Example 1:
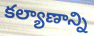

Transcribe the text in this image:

కల్యాణాన్ని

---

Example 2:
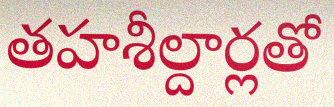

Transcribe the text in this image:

తహశీల్దార్లతో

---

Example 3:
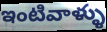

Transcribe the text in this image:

ఇంటివాళ్ళు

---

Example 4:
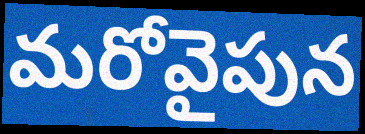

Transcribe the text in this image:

మరోవైపున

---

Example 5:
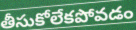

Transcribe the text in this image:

తీసుకోలేకపోవడం